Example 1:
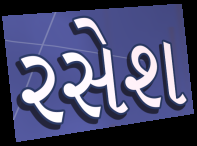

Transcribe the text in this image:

રસેશ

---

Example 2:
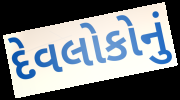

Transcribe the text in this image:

દેવલોકોનું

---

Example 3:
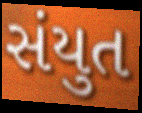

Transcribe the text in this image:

સંયુત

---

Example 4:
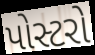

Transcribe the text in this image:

પોસ્ટરો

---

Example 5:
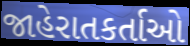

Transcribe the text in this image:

જાહેરાતકર્તાઓ